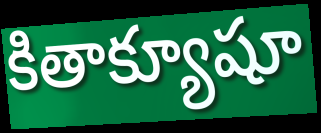
కితాక్యూషూ